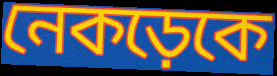
নেকড়েকে